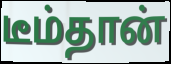
டீம்தான்